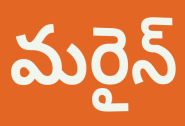
మరైన్